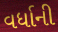
વર્ધાની